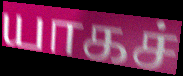
யாகச்